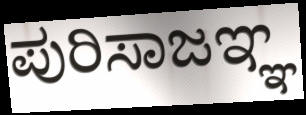
ಪುರಿಸಾಜಞ್ಞ